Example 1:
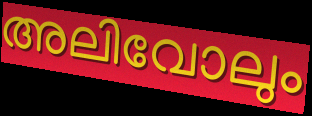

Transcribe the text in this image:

അലിവോലും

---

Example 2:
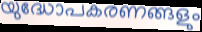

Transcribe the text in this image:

യുദ്ധോപകരണങ്ങളും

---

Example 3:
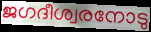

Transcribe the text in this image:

ജഗദീശ്വരനോടു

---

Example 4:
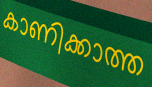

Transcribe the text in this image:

കാണിക്കാത്ത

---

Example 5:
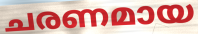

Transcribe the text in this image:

ചരണമായ